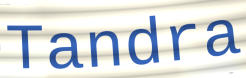
Tandra